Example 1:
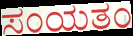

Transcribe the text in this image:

ಸಂಯತಂ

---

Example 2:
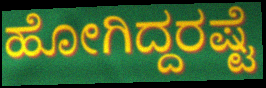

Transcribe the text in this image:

ಹೋಗಿದ್ದರಷ್ಟೆ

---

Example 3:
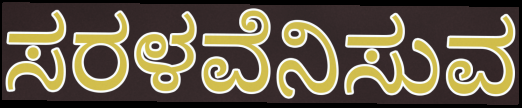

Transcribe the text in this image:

ಸರಳವೆನಿಸುವ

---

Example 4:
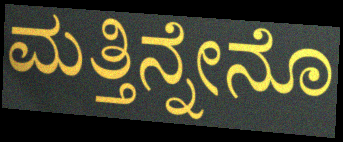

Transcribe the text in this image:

ಮತ್ತಿನ್ನೇನೊ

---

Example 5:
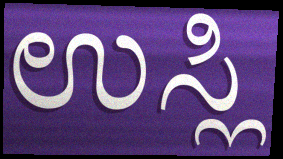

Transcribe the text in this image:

ಉಸ್ಲಿ